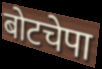
बोटचेपा